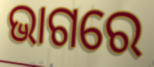
ଭାଗରେ